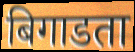
बिगाडता